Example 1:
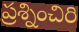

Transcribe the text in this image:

ప్రశ్నించిరి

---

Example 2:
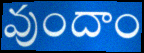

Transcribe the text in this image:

వుందాం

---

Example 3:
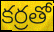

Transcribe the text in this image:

కర్రతో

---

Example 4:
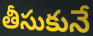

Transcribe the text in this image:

తీసుకునే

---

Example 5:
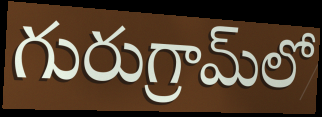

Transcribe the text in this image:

గురుగ్రామ్‌లో